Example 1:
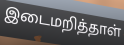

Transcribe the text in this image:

இடைமறித்தாள்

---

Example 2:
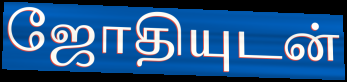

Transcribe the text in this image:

ஜோதியுடன்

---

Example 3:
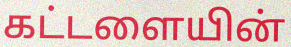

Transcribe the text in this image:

கட்டளையின்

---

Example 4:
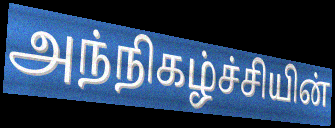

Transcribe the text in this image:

அந்நிகழ்ச்சியின்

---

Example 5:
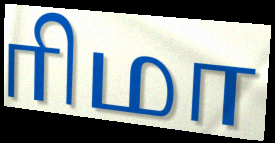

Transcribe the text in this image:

ரிமா